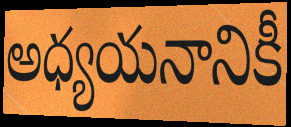
అధ్యయనానికీ